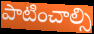
పాటించాల్సి